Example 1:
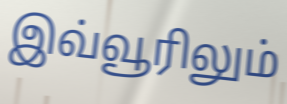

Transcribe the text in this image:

இவ்வூரிலும்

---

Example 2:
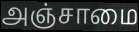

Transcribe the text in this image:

அஞ்சாமை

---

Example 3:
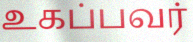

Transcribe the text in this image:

உகப்பவர்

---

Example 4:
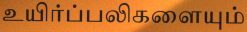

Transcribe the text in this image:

உயிர்ப்பலிகளையும்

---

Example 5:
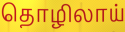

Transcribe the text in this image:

தொழிலாய்